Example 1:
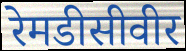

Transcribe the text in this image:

रेमडीसीवीर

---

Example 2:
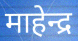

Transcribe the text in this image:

माहेन्द्र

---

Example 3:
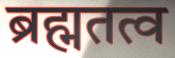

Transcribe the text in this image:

ब्रह्मतत्व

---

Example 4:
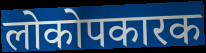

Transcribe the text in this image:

लोकोपकारक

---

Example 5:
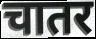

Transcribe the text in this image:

चातर